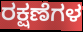
ರಕ್ಷಣೆಗಳ